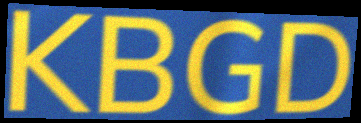
KBGD